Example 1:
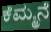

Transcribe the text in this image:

ಕೆಮ್ಮನೆ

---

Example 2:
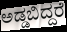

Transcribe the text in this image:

ಅಡ್ಡಬಿದ್ದರೆ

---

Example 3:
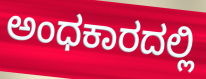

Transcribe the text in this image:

ಅಂಧಕಾರದಲ್ಲಿ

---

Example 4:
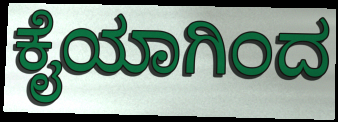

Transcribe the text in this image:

ಕೈಯಾಗಿಂದ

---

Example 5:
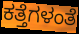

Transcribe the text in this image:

ಕತ್ತೆಗಳಂತೆ